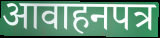
आवाहनपत्र